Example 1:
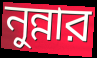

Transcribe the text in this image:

নুন্নার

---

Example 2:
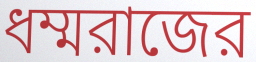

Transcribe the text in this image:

ধম্মরাজের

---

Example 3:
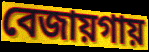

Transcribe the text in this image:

বেজায়গায়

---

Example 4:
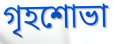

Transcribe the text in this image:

গৃহশোভা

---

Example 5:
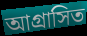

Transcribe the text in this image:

আগ্রাসিত